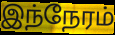
இந்நேரம்